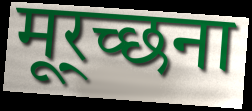
मूर्च्छना